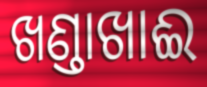
ଖଣ୍ଡାଖାଈ